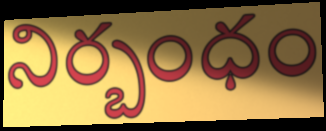
నిర్బంధం